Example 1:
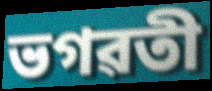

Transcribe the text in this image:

ভগৱতী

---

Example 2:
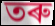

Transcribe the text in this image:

তৰু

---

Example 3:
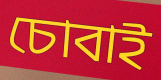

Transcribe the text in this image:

চোবাই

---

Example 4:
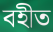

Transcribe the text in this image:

বহীত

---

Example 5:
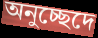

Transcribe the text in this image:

অনুচ্ছেদে